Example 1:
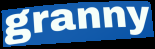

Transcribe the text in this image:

granny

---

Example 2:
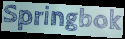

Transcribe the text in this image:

Springbok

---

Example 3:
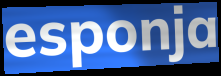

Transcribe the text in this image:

esponja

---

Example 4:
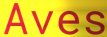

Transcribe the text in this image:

Aves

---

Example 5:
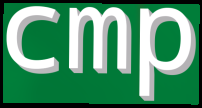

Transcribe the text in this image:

cmp